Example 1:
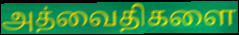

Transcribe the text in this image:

அத்வைதிகளை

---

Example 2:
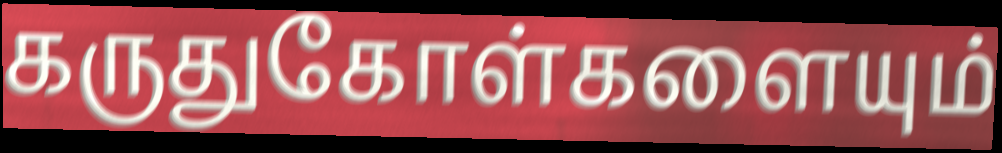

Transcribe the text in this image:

கருதுகோள்களையும்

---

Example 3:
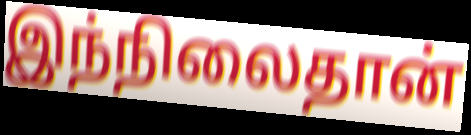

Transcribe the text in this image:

இந்நிலைதான்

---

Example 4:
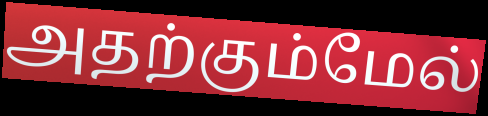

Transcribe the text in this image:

அதற்கும்மேல்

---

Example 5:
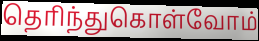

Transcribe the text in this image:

தெரிந்துகொள்வோம்